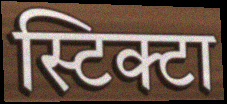
स्टिक्टा